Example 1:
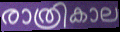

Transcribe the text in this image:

രാത്രികാല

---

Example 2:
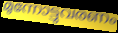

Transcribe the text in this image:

മുന്നോട്ടുവരണം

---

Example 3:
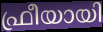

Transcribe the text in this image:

ഫ്രീയായി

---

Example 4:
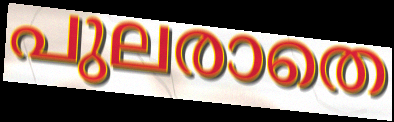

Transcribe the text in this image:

പുലരാതെ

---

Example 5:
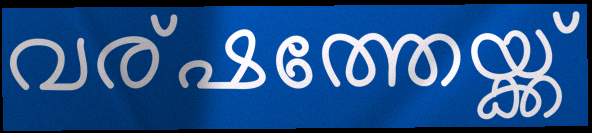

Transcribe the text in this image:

വര്ഷത്തേയ്ക്ക്